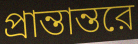
প্রান্তান্তরে